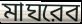
মাঘরেব